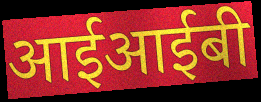
आईआईबी